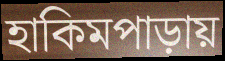
হাকিমপাড়ায়